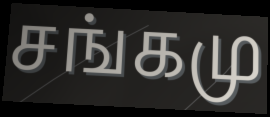
சங்கமு